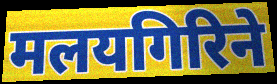
मलयगिरिने